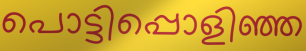
പൊട്ടിപ്പൊളിഞ്ഞ